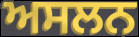
ਅਸਲਨ